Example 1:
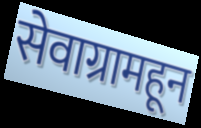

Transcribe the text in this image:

सेवाग्रामहून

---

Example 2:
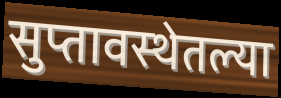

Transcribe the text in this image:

सुप्तावस्थेतल्या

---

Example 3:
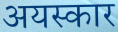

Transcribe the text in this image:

अयस्कार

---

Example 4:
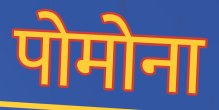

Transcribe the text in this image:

पोमोना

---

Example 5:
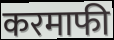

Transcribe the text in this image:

करमाफी